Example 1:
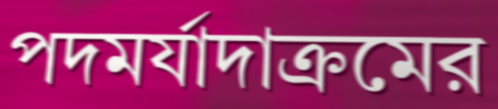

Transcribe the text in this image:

পদমর্যাদাক্রমের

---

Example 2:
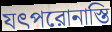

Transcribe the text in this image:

যৎপরোনাস্তি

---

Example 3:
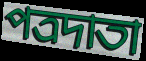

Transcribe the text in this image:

পত্রদাতা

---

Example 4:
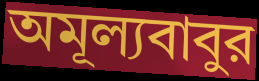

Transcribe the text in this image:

অমূল্যবাবুর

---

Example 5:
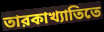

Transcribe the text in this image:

তারকাখ্যাতিতে